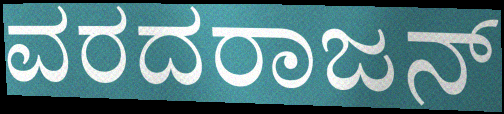
ವರದರಾಜನ್